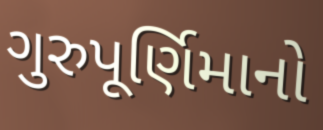
ગુરુપૂર્ણિમાનો